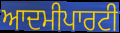
ਆਦਮੀਪਾਰਟੀ